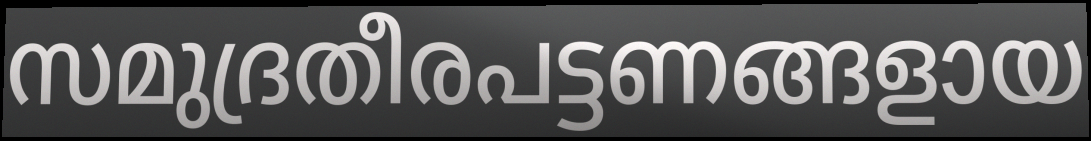
സമുദ്രതീരപട്ടണങ്ങളായ